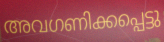
അവഗണിക്കപ്പെട്ടു